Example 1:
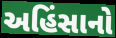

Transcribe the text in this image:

અહિંસાનો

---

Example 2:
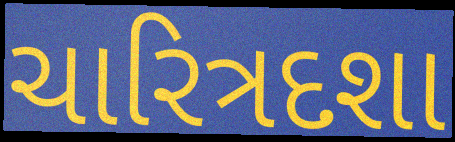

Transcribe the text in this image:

ચારિત્રદશા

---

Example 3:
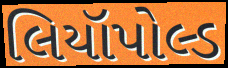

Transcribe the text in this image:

લિયૉપોલ્ડ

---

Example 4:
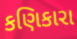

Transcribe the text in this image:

કણિકારા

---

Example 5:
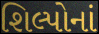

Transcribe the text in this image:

શિલ્પોનાં